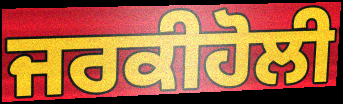
ਜਰਕੀਹੋਲੀ